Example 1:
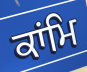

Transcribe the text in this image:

ਕਾਂਮਿ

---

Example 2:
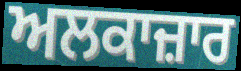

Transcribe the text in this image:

ਅਲਕਾਜ਼ਾਰ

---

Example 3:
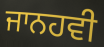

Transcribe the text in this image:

ਜਾਨਹਵੀ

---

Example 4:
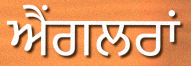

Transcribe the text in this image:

ਐਂਗਲਰਾਂ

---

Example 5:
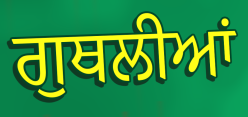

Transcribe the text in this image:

ਗੁਥਲੀਆਂ